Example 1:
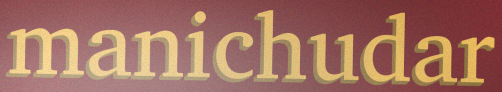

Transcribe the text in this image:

manichudar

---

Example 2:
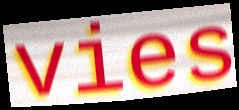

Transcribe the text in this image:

vies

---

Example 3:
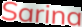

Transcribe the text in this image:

Sarina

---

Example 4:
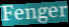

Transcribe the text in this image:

Fenger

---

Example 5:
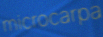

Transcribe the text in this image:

microcarpa